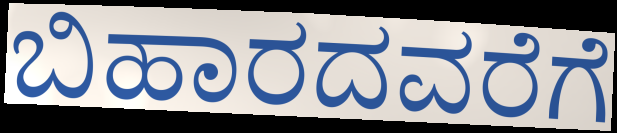
ಬಿಹಾರದವರೆಗೆ